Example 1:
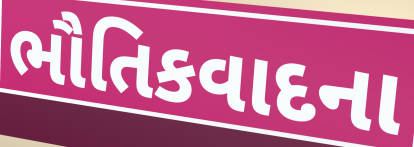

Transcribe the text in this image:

ભૌતિકવાદના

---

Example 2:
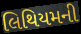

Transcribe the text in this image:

લિથિયમની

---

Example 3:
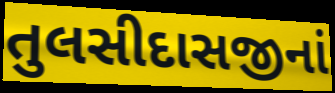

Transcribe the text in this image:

તુલસીદાસજીનાં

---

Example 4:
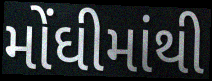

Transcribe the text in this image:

મોંઘીમાંથી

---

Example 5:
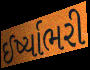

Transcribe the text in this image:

ઈર્ષ્યાભરી